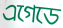
এগেডে